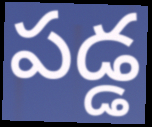
పడ్డ